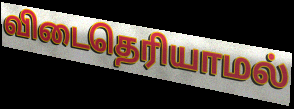
விடைதெரியாமல்